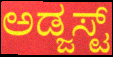
ಅಡ್ಜಸ್ಟ್